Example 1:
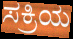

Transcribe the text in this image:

ಸಕ್ರಿಯ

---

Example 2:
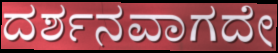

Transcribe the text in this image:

ದರ್ಶನವಾಗದೇ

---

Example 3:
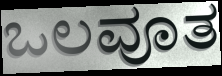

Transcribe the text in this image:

ಒಲವೂತ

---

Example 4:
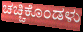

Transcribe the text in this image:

ಚಚ್ಚಿಕೊಂಡಳು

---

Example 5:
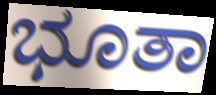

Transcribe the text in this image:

ಭೂತಾ